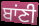
ਬਾਂਣੀ